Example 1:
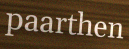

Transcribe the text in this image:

paarthen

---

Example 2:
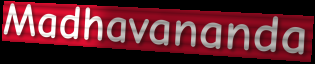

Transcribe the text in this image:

Madhavananda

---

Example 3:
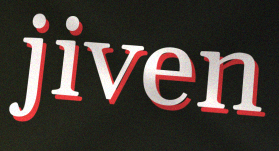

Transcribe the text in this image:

jiven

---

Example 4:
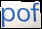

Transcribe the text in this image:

pof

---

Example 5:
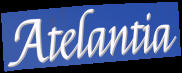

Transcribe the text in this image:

Atelantia